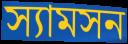
স্যামসন